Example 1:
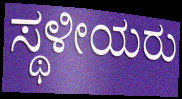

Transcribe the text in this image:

ಸ್ಥಳೀಯರು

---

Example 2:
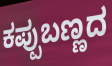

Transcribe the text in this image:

ಕಪ್ಪುಬಣ್ಣದ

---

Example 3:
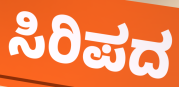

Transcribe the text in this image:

ಸಿರಿಪದ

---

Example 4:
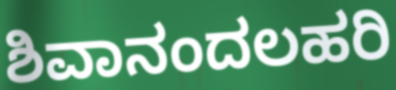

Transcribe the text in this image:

ಶಿವಾನಂದಲಹರಿ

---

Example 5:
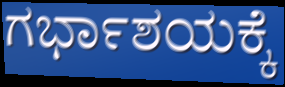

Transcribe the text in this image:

ಗರ್ಭಾಶಯಕ್ಕೆ